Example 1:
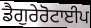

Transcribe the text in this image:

ਡੈਗੁਰੇਰੋਟਾਈਪ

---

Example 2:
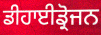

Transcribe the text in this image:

ਡੀਹਾਈਡ੍ਰੋਜਨ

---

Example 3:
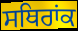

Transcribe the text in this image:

ਸਥਿਰਾਂਕ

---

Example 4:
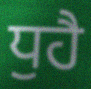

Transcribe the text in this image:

ਧੁਹੈ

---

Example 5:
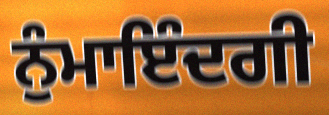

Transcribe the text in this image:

ਨੁੰਮਾਇੰਦਗੀ